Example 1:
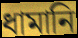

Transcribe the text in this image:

ধামানি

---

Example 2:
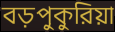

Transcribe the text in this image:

বড়পুকুরিয়া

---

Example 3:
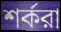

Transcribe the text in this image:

শর্করা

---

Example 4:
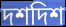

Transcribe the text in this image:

দশদিশ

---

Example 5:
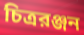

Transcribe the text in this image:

চিত্ররঞ্জন